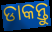
ଡାକନ୍ତୁ